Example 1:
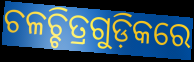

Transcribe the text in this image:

ଚଳଚ୍ଚିତ୍ରଗୁଡ଼ିକରେ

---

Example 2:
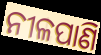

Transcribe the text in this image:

ନୀଳପାଣି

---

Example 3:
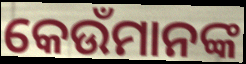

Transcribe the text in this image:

କେଉଁମାନଙ୍କ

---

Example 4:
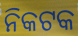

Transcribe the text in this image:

ନିକଟକ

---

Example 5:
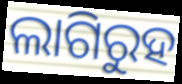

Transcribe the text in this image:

ଲାଗିରୁହ